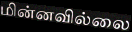
மின்னவில்லை